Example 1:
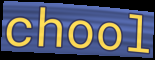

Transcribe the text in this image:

chool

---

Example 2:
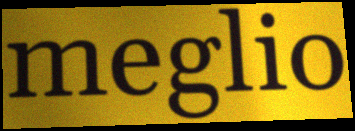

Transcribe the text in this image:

meglio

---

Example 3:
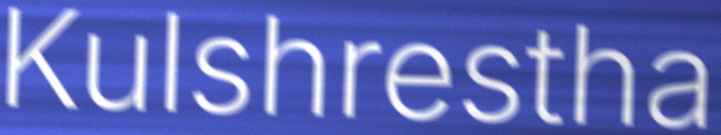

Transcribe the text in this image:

Kulshrestha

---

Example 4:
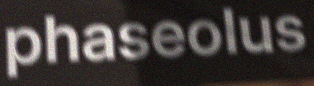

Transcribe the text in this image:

phaseolus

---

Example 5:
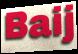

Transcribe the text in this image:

Baij